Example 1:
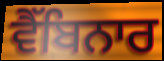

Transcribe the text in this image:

ਵੈੱਬਿਨਾਰ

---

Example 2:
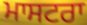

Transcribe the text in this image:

ਮਾਸਟਰਾ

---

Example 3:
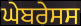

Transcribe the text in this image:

ਘੇਬਰੇਸਸ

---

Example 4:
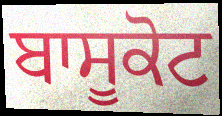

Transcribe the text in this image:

ਬਾਸੂਕੋਟ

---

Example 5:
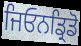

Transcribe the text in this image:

ਜਿਓਨਡ੍ਰਿਡੋ